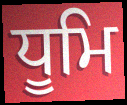
ਧੂਮਿ